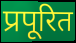
प्रपूरित